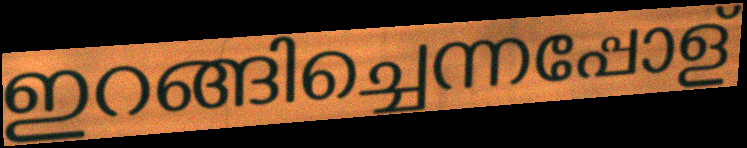
ഇറങ്ങിച്ചെന്നപ്പോള്